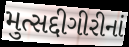
મુત્સદ્દીગીરીનાં